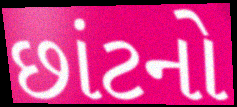
છાંટનો